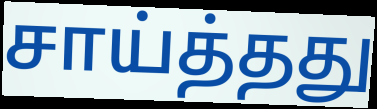
சாய்த்தது